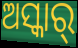
ଅସ୍କାର୍